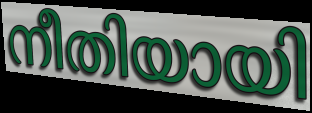
നീതിയായി